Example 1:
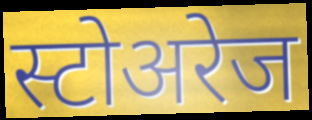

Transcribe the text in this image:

स्टोअरेज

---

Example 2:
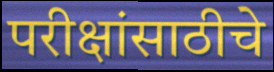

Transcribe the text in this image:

परीक्षांसाठीचे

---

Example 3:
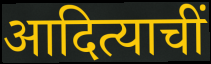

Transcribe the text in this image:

आदित्याचीं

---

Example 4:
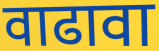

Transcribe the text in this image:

वाढावा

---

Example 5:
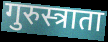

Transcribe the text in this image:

गुरुस्त्राता